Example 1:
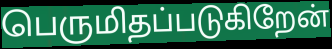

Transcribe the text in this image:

பெருமிதப்படுகிறேன்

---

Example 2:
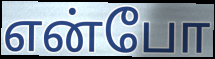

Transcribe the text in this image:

என்போ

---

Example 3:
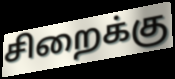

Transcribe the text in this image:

சிறைக்கு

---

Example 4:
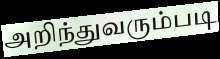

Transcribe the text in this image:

அறிந்துவரும்படி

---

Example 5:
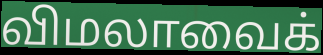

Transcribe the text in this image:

விமலாவைக்